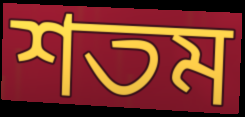
শতম